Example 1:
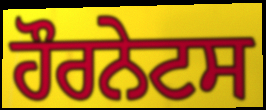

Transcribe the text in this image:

ਹੌਰਨੇਟਸ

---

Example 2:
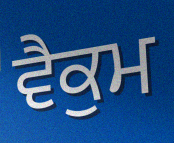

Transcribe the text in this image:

ਵੈਕੁਮ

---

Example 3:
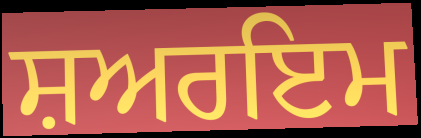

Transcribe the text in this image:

ਸ਼ਅਰਇਮ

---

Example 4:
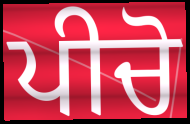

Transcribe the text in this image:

ਪੀਚੋ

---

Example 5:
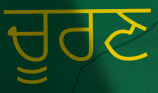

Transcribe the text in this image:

ਚੂਰਣ